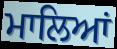
ਮਾਲਿਆਂ